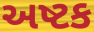
અષ્ટક